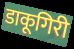
डाकूगिरी